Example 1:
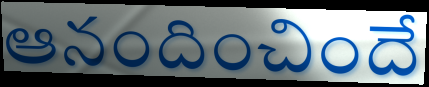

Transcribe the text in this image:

ఆనందించిందే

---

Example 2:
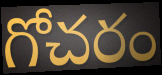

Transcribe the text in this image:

గోచరం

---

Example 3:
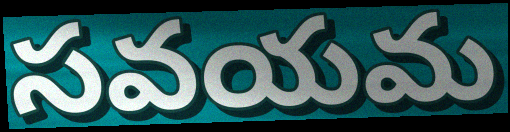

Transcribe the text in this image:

సవయమ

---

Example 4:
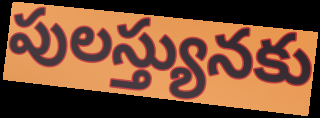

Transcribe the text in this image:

పులస్త్యునకు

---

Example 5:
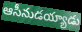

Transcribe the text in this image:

ఆసీనుడయ్యాడు